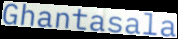
Ghantasala